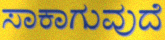
ಸಾಕಾಗುವುದೆ